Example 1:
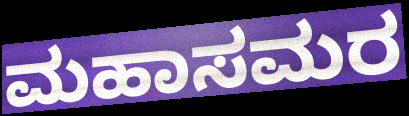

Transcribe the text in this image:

ಮಹಾಸಮರ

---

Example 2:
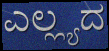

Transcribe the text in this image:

ಎಲ್ಲ್ಯದ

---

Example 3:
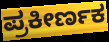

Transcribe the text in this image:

ಪ್ರಕೀರ್ಣಕ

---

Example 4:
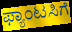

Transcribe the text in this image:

ಫ್ಯಾಂಟಸಿಗೆ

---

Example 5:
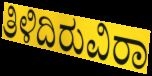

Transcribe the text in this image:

ತಿಳಿದಿರುವಿರಾ